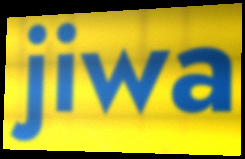
jiwa